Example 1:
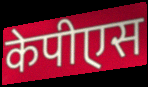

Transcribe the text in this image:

केपीएस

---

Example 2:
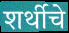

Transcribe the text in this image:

शर्थीचे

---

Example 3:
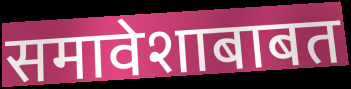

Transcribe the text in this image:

समावेशाबाबत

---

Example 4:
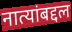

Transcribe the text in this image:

नात्यांबद्दल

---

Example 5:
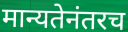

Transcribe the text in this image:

मान्यतेनंतरच